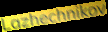
Lazhechnikov